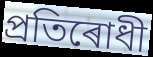
প্ৰতিৰোধী